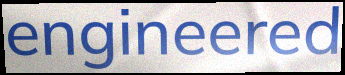
engineered